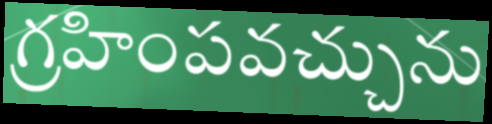
గ్రహింపవచ్చును